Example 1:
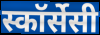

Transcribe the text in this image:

स्कॉर्सेसी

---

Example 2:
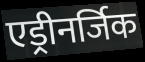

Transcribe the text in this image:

एड्रीनर्जिक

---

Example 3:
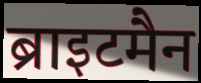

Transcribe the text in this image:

ब्राइटमैन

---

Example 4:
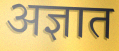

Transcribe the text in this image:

अज्ञात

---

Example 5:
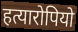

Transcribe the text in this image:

हत्यारोपियो